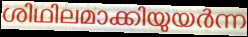
ശിഥിലമാക്കിയുയർന്ന